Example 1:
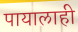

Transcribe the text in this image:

पायालाही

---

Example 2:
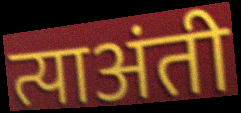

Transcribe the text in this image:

त्याअंती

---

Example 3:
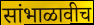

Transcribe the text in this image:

सांभाळावीच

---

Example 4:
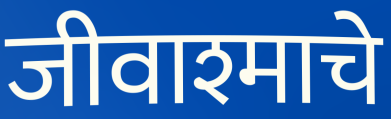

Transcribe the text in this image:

जीवाश्माचे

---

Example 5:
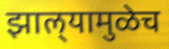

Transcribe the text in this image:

झाल्यामुळेच